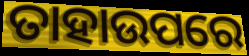
ତାହାଉପରେ